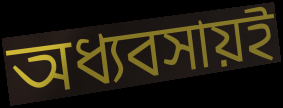
অধ্যবসায়ই